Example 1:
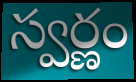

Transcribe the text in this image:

స్వర్ణం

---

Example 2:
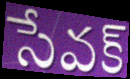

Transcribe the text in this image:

సేవక్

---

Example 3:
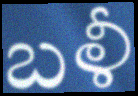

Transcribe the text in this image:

బళీ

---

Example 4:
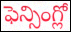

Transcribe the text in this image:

ఫెన్సింగ్లో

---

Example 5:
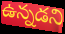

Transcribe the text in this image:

ఉన్నడని